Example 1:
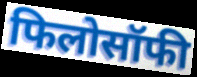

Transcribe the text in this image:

फिलोसॉफी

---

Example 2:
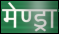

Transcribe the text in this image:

मेण्ड्रा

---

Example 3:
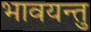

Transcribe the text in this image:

भावयन्तु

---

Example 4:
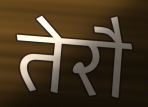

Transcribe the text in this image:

तेरौ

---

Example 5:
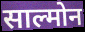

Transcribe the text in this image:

साल्मोन